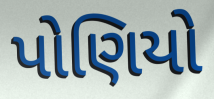
પોણિયો